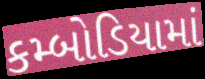
કમ્બોડિયામાં